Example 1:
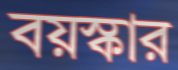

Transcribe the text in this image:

বয়স্কার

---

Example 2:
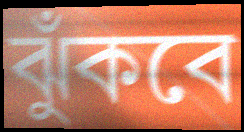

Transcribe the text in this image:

ঝুঁকবে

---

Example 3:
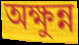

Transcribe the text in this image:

অক্ষুন্ন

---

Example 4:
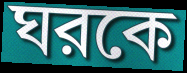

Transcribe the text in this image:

ঘরকে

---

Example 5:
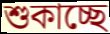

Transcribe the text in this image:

শুকাচ্ছে